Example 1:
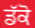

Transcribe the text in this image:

ਡੱਕੋ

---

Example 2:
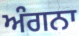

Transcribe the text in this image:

ਅੰਗਨਾ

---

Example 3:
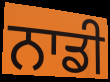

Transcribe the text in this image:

ਨਾਡੀ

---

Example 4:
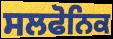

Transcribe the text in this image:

ਸਲਫੋਨਿਕ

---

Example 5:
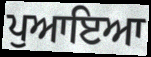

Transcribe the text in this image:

ਪੁਆਇਆ